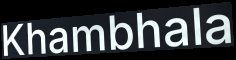
Khambhala